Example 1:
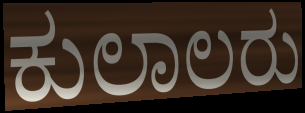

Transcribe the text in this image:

ಕುಲಾಲರು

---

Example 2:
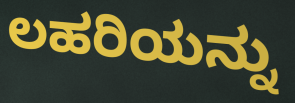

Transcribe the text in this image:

ಲಹರಿಯನ್ನು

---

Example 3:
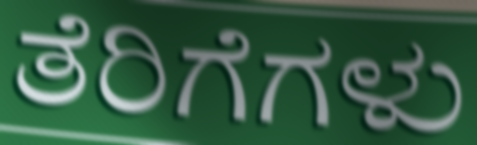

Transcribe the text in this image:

ತೆರಿಗೆಗಳು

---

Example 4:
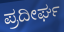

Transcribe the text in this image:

ಪ್ರದೀರ್ಘ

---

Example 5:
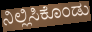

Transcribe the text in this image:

ನಿಲ್ಲಿಸಿಕೊಂಡು